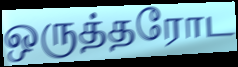
ஒருத்தரோட